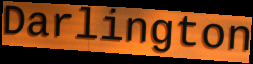
Darlington